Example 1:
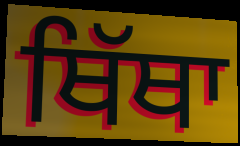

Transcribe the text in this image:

ਥਿੱਥਾ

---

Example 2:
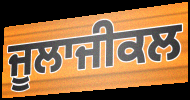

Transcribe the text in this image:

ਜੂਲਾਜੀਕਲ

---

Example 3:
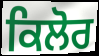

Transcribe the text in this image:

ਕਿਲੋਰ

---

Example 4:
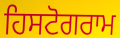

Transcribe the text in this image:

ਹਿਸਟੋਗਰਾਮ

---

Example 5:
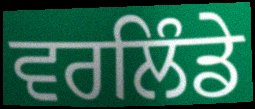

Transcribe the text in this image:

ਵਰਲਿੰਡੇ